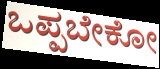
ಒಪ್ಪಬೇಕೋ